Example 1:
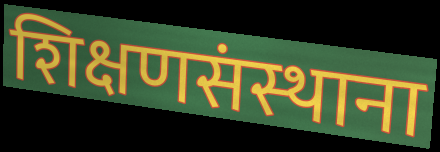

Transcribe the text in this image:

शिक्षणसंस्थाना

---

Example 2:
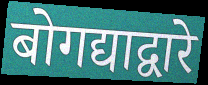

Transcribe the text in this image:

बोगद्याद्वारे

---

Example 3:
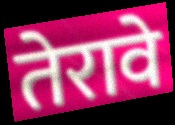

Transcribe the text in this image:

तेरावे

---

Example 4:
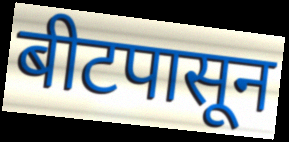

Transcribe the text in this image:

बीटपासून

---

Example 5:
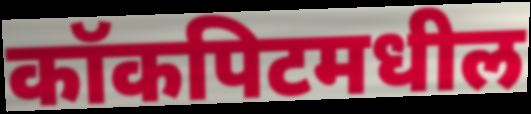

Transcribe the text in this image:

कॉकपिटमधील